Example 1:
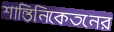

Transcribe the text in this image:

শান্তিনিকেতনের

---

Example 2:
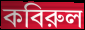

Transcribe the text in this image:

কবিরুল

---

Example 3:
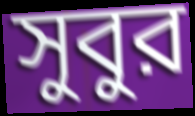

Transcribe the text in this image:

সুবুর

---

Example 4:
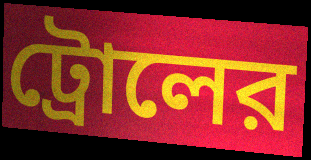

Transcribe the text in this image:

ট্রোলের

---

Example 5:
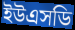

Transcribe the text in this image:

ইউএসডি